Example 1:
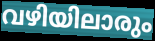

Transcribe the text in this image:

വഴിയിലാരും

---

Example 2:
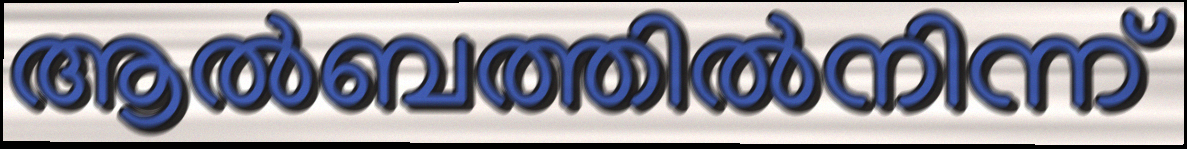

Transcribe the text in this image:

ആൽബത്തിൽനിന്ന്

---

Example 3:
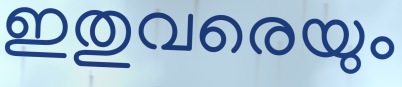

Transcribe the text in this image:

ഇതുവരെയും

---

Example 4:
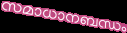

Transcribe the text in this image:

സമാധാനബന്ധം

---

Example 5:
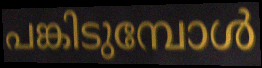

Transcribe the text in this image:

പങ്കിടുമ്പോൾ